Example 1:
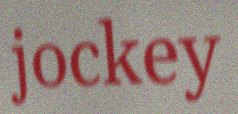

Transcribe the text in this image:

jockey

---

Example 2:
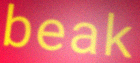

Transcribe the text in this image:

beak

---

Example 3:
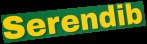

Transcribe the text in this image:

Serendib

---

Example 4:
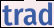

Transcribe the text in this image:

trad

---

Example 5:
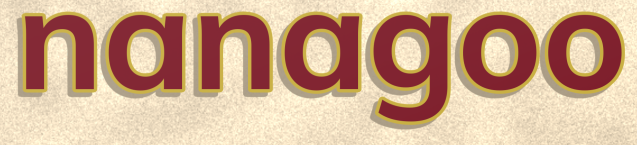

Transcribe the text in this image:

nanagoo